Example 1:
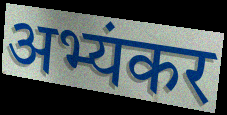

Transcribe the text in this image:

अभ्यंकर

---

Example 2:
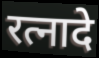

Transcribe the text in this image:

रत्नादे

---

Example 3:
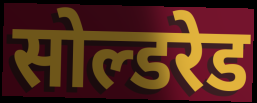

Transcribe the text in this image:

सोल्डरेड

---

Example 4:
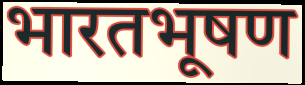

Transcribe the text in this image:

भारतभूषण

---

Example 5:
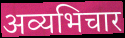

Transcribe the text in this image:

अव्यभिचार